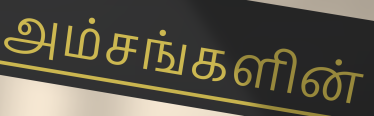
அம்சங்களின்